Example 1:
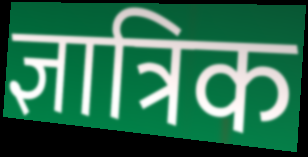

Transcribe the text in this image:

ज्ञात्रिक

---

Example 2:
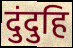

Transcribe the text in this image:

दुंदुहि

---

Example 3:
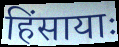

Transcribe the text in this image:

हिंसायाः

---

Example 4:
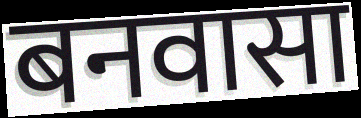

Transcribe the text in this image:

बनवासा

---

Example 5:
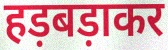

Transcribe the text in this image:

हड़बड़ाकर